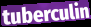
tuberculin